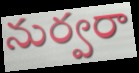
నుర్వరా